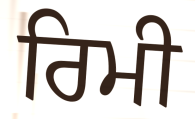
ਰਿਮੀ